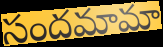
సందమామా